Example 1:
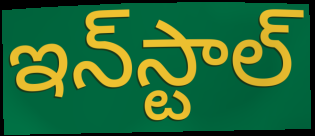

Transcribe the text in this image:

ఇన్‌స్టాల్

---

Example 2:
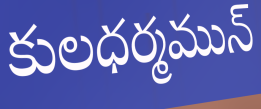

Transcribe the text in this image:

కులధర్మమున్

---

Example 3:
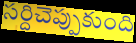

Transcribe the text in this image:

సర్దిచెప్పుకుంది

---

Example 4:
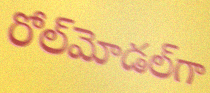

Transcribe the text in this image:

రోల్‌మోడల్‌గా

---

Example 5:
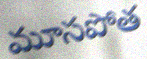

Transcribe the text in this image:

మూసపోత